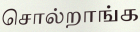
சொல்றாங்க